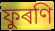
ফুৰণি